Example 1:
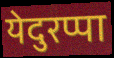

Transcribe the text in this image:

येदुरप्पा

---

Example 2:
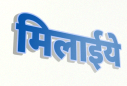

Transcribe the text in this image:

मिलाईये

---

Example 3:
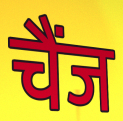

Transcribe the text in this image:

चैंज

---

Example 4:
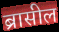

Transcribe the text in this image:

ब्रासील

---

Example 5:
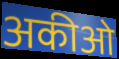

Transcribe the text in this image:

अकीओ